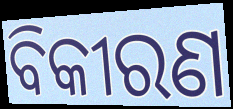
ବିକୀରଣ